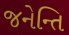
જનેન્તિ